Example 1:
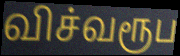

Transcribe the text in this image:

விச்வரூப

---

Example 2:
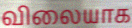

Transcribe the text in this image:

விலையாக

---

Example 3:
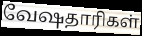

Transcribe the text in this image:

வேஷதாரிகள்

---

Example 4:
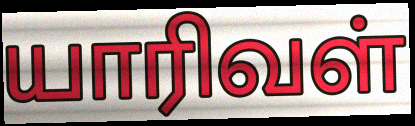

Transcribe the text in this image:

யாரிவள்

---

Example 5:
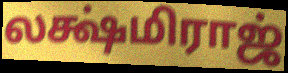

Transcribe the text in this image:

லக்ஷ்மிராஜ்